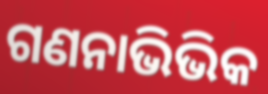
ଗଣନାଭିଭିକ